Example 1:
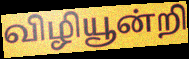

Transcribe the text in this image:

விழியூன்றி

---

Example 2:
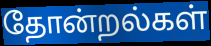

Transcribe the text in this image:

தோன்றல்கள்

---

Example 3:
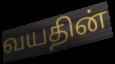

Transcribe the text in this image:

வயதின்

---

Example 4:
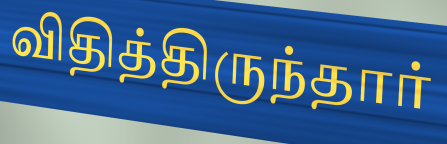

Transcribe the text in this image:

விதித்திருந்தார்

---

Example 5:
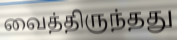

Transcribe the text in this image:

வைத்திருந்தது